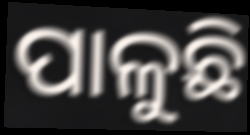
ପାଳୁଛି